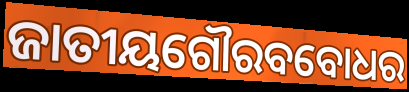
ଜାତୀୟଗୌରବବୋଧର